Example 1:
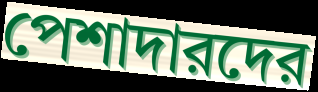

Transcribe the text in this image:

পেশাদারদের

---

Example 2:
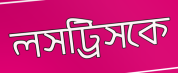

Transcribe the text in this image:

লসট্রিসকে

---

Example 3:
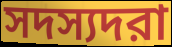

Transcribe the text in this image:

সদস্যদরা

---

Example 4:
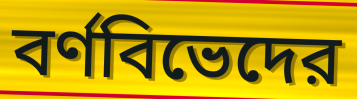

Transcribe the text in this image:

বর্ণবিভেদের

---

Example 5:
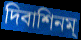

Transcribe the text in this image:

দিবাশিনম্